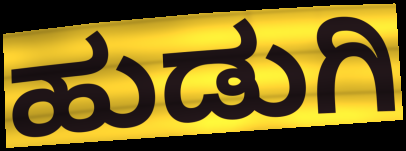
ಹುಡುಗಿ